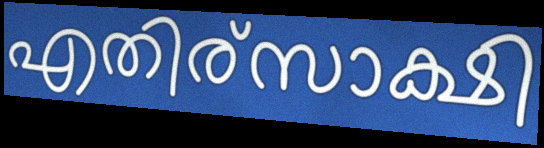
എതിര്സാക്ഷി